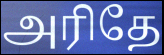
அரிதே